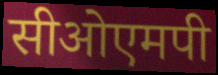
सीओएमपी